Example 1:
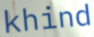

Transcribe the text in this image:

khind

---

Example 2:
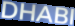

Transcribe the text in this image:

DHABI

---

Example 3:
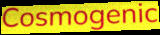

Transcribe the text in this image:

Cosmogenic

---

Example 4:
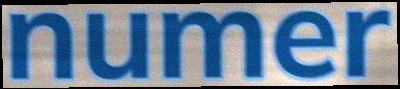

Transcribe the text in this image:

numer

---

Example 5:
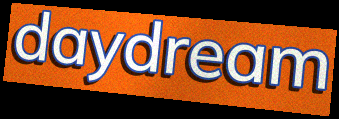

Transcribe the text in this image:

daydream